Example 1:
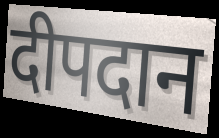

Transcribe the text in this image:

दीपदान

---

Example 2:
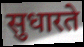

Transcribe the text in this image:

सुधारते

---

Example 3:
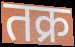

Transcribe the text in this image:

तक्र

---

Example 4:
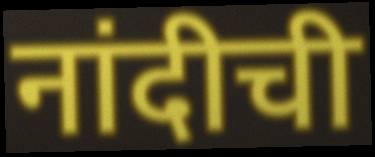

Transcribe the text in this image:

नांदीची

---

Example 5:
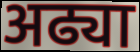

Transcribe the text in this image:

अढ्या